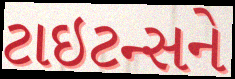
ટાઇટન્સને